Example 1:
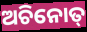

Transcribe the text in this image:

ଅଚିନୋତ୍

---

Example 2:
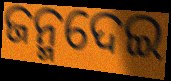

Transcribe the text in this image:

ଜନ୍ମଦେଇ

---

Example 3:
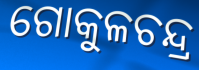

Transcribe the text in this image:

ଗୋକୁଳଚନ୍ଦ୍ର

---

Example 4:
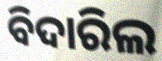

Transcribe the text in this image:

ବିଦାରିଲ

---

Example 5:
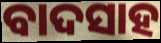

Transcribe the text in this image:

ବାଦସାହ